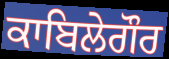
ਕਾਬਿਲੇਗੌਰ